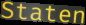
Staten